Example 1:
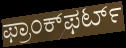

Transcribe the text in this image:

ಫ್ರಾಂಕ್‌ಫರ್ಟ್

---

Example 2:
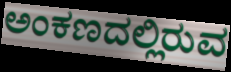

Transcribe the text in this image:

ಅಂಕಣದಲ್ಲಿರುವ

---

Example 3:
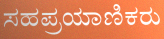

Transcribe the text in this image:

ಸಹಪ್ರಯಾಣಿಕರು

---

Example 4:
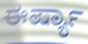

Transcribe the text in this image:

ಈರ್ಷ್ಯಾ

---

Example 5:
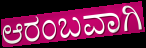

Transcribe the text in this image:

ಆರಂಬವಾಗಿ